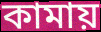
কামায়